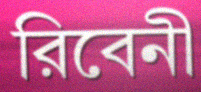
রিবেনী